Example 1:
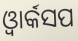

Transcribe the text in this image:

ଓ୍ୱାର୍କସପ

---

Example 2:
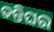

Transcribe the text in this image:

ତନ୍ତିଘର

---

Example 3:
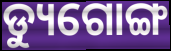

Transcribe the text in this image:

ଡ୍ୟୁଗୋଙ୍ଗ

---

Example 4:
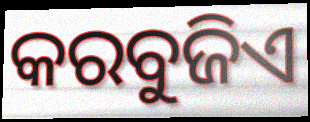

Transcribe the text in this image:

କରବୁଜିଏ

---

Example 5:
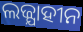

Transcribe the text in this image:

ଲଜ୍ଯାହୀନ